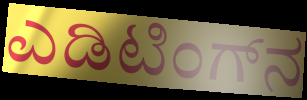
ಎಡಿಟಿಂಗ್‌ನ